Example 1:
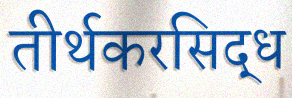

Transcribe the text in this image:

तीर्थकरसिद्ध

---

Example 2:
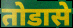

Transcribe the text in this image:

तोडासे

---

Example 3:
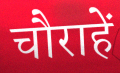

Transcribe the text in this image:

चौराहें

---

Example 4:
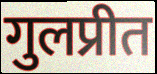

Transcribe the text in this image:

गुलप्रीत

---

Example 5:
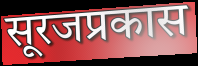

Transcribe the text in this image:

सूरजप्रकास